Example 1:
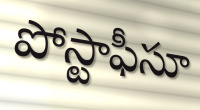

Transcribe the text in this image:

పోస్టాఫీసూ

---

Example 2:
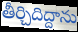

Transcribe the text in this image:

తీర్చిదిద్దాను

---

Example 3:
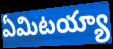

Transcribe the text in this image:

ఏమిటయ్యా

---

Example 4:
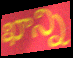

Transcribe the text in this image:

ఖాన్ని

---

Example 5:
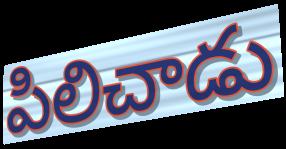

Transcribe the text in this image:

పిలిచాడు